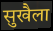
सुखैला